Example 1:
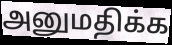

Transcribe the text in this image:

அனுமதிக்க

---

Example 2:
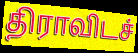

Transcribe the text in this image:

திராவிடச்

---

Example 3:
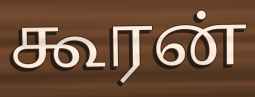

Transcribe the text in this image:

கூரன்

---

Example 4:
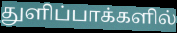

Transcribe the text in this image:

துளிப்பாக்களில்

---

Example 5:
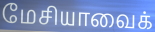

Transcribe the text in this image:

மேசியாவைக்